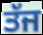
ਤੱਜ